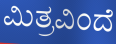
ಮಿತ್ರವಿಂದೆ